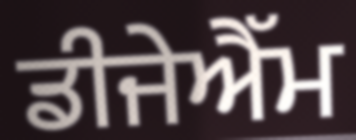
ਡੀਜੇਐੱਮ